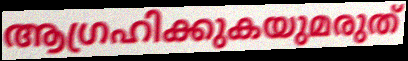
ആഗ്രഹിക്കുകയുമരുത്